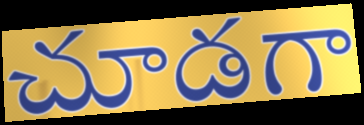
చూడగా